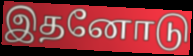
இதனோடு